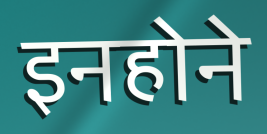
इनहोने